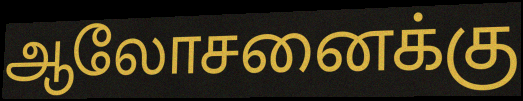
ஆலோசனைக்கு